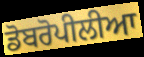
ਡੋਬਰੋਪੀਲੀਆ